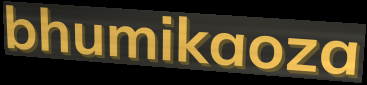
bhumikaoza